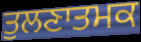
ਤੁਲਣਾਤਮਕ